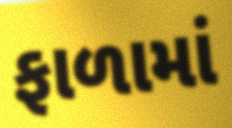
ફાળામાં